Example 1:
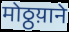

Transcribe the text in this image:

मोठ्ठय़ाने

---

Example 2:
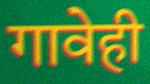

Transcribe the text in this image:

गावेही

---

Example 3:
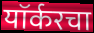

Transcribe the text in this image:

यॉर्करचा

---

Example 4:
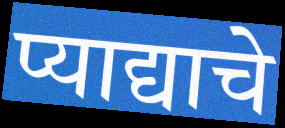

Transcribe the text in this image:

प्याद्याचे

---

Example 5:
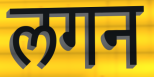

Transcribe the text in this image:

लगन